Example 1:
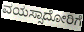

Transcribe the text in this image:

ವಯಸ್ಸಾದೋರಿಗೆ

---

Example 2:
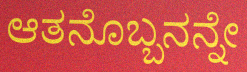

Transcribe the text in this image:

ಆತನೊಬ್ಬನನ್ನೇ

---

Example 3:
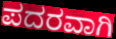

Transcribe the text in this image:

ಪದರವಾಗಿ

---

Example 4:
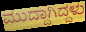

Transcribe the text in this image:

ಮುದ್ದಾಗಿದ್ದಳು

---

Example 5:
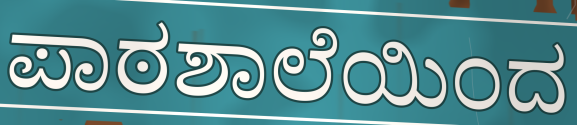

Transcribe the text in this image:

ಪಾಠಶಾಲೆಯಿಂದ